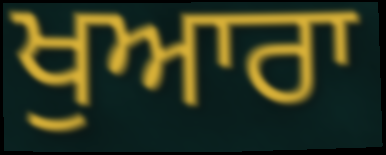
ਖੁਆਰਾ